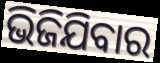
ଭିଜିଯିବାର